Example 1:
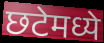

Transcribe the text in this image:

छटेमध्ये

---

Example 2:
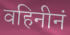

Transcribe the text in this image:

वहिनीनं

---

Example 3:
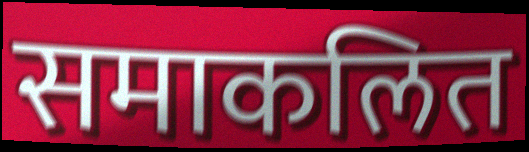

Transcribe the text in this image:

समाकलित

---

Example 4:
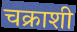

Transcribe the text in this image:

चक्राशी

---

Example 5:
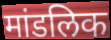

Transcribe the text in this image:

मांडलिक